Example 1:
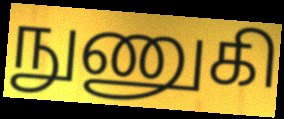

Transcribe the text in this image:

நுணுகி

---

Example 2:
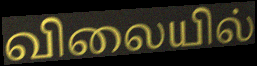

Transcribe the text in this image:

விலையில்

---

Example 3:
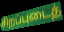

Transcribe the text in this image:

சிறப்புடைத்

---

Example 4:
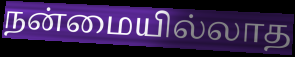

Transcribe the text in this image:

நன்மையில்லாத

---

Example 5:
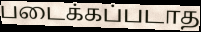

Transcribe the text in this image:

படைக்கப்படாத